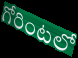
గోరింటలో